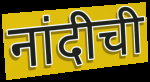
नांदीची